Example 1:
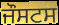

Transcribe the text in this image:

ਜੌਸਟਸ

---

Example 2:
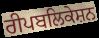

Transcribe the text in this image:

ਰੀਪਬਲਿਕੇਸ਼ਨ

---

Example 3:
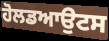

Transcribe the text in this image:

ਹੋਲਡਆਉਟਸ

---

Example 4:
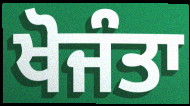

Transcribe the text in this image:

ਖੋਜੰਤਾ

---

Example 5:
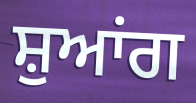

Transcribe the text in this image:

ਸ਼ੁਆਂਗ